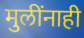
मुलींनाही